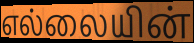
எல்லையின்